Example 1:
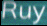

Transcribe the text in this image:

Ruy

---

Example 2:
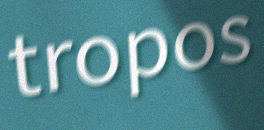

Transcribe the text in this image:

tropos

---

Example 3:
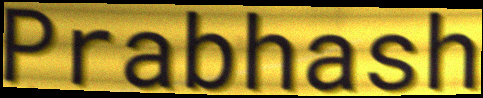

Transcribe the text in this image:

Prabhash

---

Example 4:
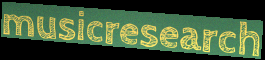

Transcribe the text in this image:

musicresearch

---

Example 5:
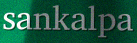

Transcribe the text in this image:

sankalpa